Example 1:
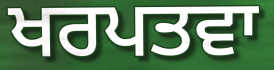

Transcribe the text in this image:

ਖਰਪਤਵਾ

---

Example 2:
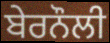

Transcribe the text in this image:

ਬੇਰਨੌਲੀ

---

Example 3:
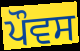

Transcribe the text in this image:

ਪੌਵਸ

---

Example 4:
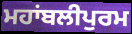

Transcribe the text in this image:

ਮਹਾਂਬਲੀਪੁਰਮ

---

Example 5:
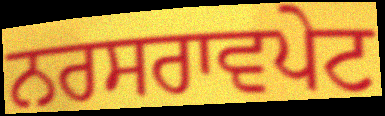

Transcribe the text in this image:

ਨਰਸਰਾਵਪੇਟ